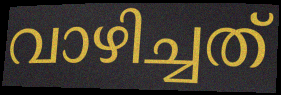
വാഴിച്ചത്